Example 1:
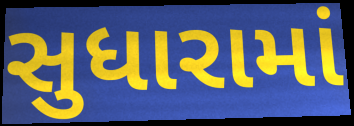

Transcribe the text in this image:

સુધારામાં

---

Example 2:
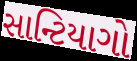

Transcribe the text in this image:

સાન્ટિયાગો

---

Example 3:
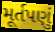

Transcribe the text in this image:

મૂર્તપણું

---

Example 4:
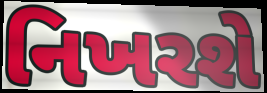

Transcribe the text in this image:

નિખરશે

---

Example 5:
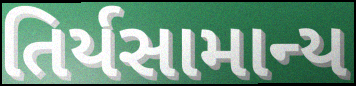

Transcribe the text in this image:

તિર્યસામાન્ય